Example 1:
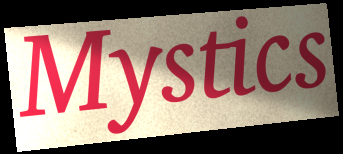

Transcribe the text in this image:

Mystics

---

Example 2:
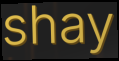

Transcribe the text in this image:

shay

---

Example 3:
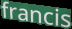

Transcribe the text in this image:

francis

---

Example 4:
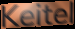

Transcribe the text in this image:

Keitel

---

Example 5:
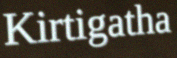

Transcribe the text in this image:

Kirtigatha